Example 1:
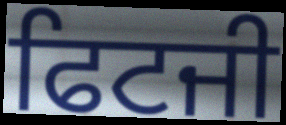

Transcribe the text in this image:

ਫਿਟਜੀ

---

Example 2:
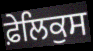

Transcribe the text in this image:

ਫ਼ੇਲਿਕੁਸ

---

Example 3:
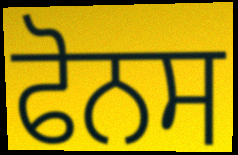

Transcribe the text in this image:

ਫੋਨਸ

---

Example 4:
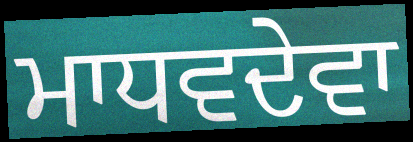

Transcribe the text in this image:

ਮਾਧਵਦੇਵਾ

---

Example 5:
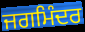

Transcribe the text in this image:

ਜਗਮਿੰਦਰ